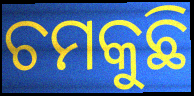
ଚମକୁଛି